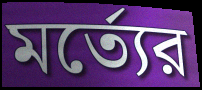
মর্ত্যের